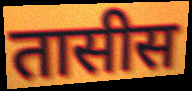
तासीस